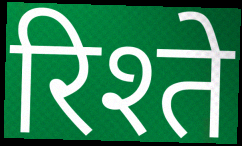
रिश्ते